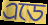
এডে